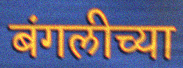
बंगलीच्या